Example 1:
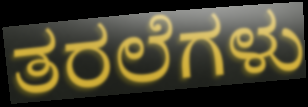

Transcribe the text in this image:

ತರಲೆಗಳು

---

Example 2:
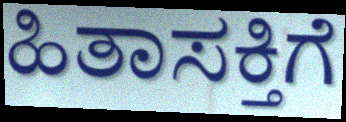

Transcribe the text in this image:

ಹಿತಾಸಕ್ತಿಗೆ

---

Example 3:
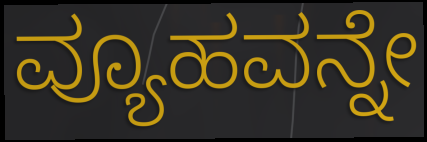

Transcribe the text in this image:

ವ್ಯೂಹವನ್ನೇ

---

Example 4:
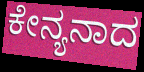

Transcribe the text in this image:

ಕೇನ್ಯನಾದ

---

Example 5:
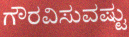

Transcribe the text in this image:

ಗೌರವಿಸುವಷ್ಟು